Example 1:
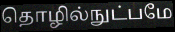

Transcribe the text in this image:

தொழில்நுட்பமே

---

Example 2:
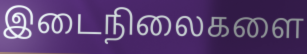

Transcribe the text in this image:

இடைநிலைகளை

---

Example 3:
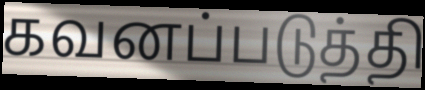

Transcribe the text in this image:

கவனப்படுத்தி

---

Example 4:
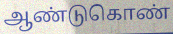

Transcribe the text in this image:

ஆண்டுகொண்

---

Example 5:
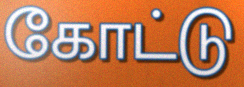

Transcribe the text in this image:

கோட்டு